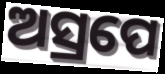
ଅସ୍ରପେ